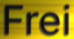
Frei